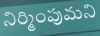
నిర్మింపుమని